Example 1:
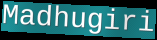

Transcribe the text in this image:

Madhugiri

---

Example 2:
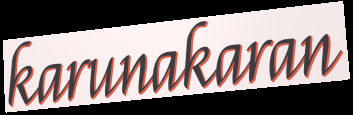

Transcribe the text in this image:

karunakaran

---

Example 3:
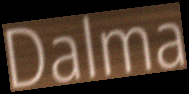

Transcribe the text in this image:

Dalma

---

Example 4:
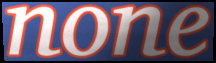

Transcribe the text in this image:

none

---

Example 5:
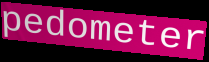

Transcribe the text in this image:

pedometer